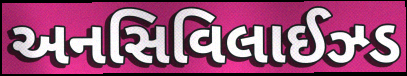
અનસિવિલાઈઝ્ડ